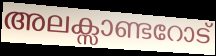
അലക്സാണ്ടറോട്